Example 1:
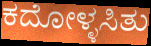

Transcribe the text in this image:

ಕದೋಳ್ಳಸಿತು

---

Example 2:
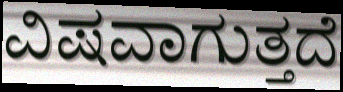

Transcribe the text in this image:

ವಿಷವಾಗುತ್ತದೆ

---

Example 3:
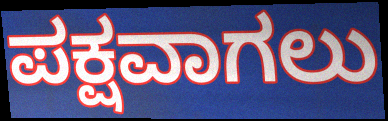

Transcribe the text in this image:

ಪಕ್ಷವಾಗಲು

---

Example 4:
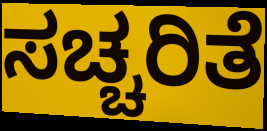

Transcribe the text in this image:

ಸಚ್ಚರಿತೆ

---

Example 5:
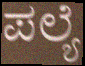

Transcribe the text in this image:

ಪಲ್ಯೆ